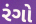
રંગો